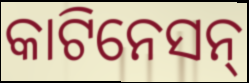
କାଟିନେସନ୍